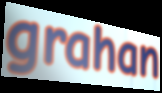
grahan